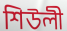
শিউলী